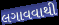
લગાવવાથી